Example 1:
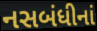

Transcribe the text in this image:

નસબંધીનાં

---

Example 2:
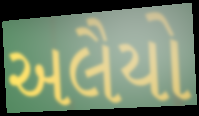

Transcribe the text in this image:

અલૈયો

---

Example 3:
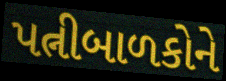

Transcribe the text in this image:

પત્નીબાળકોને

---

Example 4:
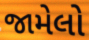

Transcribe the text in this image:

જામેલો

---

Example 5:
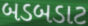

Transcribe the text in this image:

બડબડાટ